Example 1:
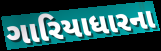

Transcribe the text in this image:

ગારિયાધારના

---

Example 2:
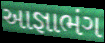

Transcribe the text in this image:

આજ્ઞાભંગ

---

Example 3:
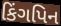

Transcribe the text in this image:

કિંગપિન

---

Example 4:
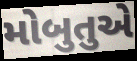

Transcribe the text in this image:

મોબુતુએ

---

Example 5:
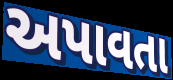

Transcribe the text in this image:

અપાવતા